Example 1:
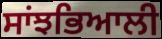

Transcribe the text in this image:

ਸਾਂਝਭਿਆਲੀ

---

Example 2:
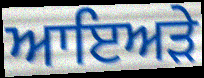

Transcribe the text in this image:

ਆਇਅੜੇ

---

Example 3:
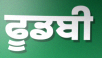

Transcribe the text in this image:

ਫੂਡਬੀ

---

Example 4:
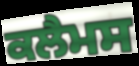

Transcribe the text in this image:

ਕਲੈਮਸ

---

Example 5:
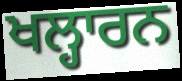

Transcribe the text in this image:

ਖਲ੍ਹਾਰਨ